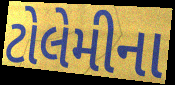
ટોલેમીના